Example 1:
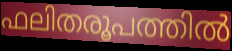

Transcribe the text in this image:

ഫലിതരൂപത്തിൽ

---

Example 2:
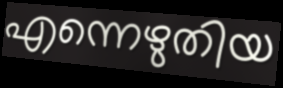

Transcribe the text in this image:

എന്നെഴുതിയ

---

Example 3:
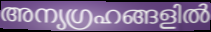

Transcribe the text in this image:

അന്യഗ്രഹങ്ങളിൽ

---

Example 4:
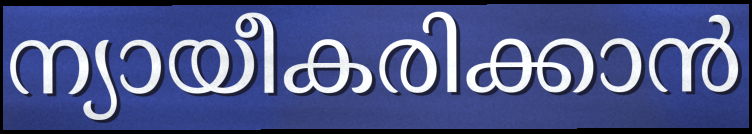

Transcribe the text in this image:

ന്യായീകരിക്കാൻ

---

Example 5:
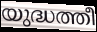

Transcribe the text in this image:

യുദ്ധത്തീ